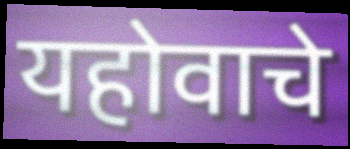
यहोवाचे